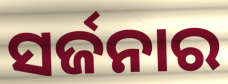
ସର୍ଜନାର